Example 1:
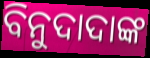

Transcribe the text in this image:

ବିନୁଦାଦାଙ୍କ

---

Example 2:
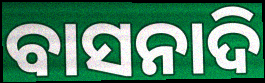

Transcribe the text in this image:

ବାସନାଦି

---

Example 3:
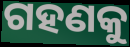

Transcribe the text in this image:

ଗହଣକୁ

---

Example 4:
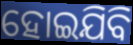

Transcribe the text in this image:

ହୋଇଯିବି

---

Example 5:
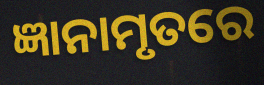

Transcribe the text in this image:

ଜ୍ଞାନାମୃତରେ